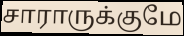
சாராருக்குமே